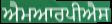
ਐਮਆਰਪੀਐਸ